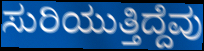
ಸುರಿಯುತ್ತಿದ್ದೆವು